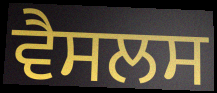
ਵੈਸਲਸ